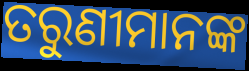
ତରୁଣୀମାନଙ୍କ